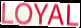
LOYAL